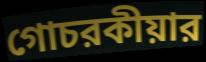
গোচরকীয়ার